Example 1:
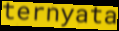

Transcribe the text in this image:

ternyata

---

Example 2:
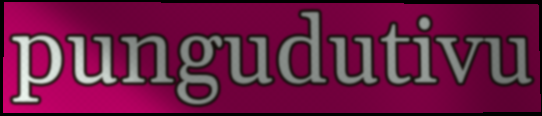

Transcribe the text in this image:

pungudutivu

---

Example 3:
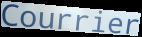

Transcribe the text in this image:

Courrier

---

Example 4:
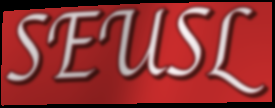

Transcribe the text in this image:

SEUSL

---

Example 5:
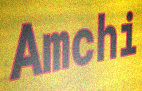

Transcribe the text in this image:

Amchi